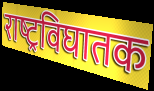
राष्ट्रविघातक